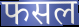
फसल